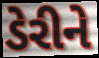
ડેરીને